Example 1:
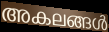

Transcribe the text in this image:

അകലങ്ങൾ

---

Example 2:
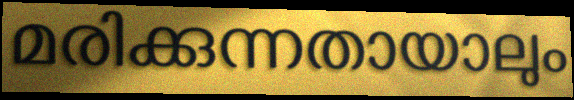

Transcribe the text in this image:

മരിക്കുന്നതായാലും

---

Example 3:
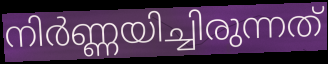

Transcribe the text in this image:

നിർണ്ണയിച്ചിരുന്നത്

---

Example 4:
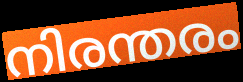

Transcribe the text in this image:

നിരന്തരം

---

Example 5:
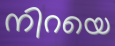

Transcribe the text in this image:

നിറയെ